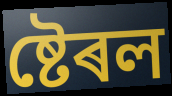
ষ্টেৰল